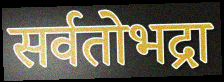
सर्वतोभद्रा